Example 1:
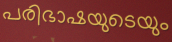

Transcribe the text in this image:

പരിഭാഷയുടെയും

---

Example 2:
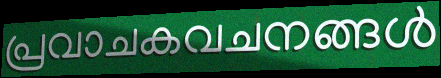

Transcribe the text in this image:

പ്രവാചകവചനങ്ങൾ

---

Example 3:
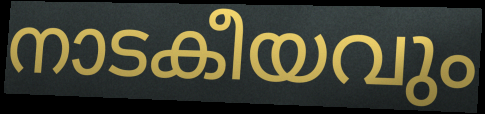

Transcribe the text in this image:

നാടകീയവും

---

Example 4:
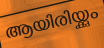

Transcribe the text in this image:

ആയിരിയ്ക്കും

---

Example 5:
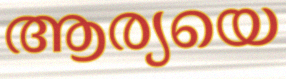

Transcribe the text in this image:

ആര്യയെ